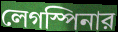
লেগস্পিনার